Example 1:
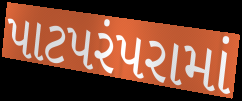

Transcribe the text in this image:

પાટપરંપરામાં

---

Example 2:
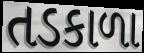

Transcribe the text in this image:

તડકાળા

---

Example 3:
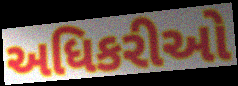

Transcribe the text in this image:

અધિકરીઓ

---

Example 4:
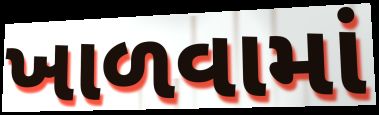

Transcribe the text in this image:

ખાળવામાં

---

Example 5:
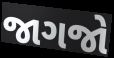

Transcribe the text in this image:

જાગજો